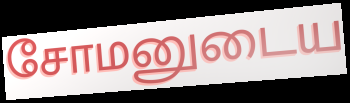
சோமனுடைய